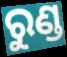
ରୁଣ୍ଡ